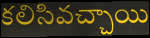
కలిసివచ్చాయి